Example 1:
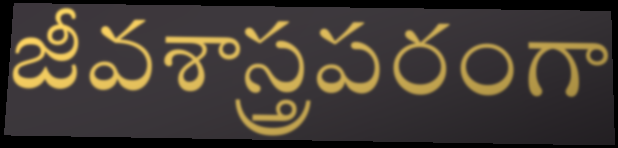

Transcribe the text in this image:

జీవశాస్త్రపరంగా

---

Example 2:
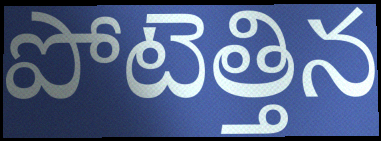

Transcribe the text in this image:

పోటెత్తిన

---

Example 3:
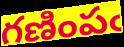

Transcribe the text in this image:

గణింపఁ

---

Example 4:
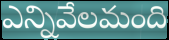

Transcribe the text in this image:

ఎన్నివేలమంది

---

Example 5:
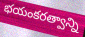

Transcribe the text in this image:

భయంకరత్వాన్ని